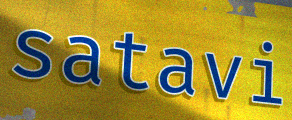
satavi